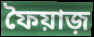
ফৈয়াজ়